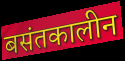
बसंतकालीन